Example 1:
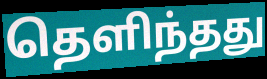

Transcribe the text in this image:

தெளிந்தது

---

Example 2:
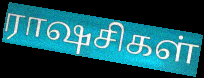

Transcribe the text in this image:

ராஷசிகள்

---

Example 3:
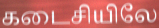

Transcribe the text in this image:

கடைசியிலே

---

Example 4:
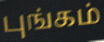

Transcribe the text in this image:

புங்கம்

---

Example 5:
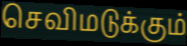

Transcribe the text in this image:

செவிமடுக்கும்